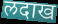
लदाख